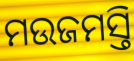
ମଉଜମସ୍ତି